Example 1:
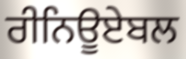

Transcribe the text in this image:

ਰੀਨਿਊਏਬਲ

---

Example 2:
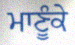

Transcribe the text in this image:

ਮਾਣੂੰਕੇ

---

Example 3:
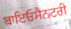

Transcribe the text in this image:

ਬਾਇਓਸੈਨਟਰੀ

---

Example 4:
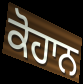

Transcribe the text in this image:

ਕੋਹਾਨ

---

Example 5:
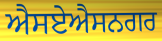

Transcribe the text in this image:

ਐਸਏਐਸਨਗਰ